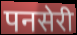
पनसेरी